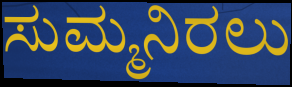
ಸುಮ್ಮನಿರಲು